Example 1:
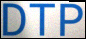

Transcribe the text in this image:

DTP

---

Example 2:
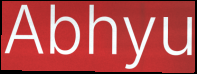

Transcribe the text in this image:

Abhyu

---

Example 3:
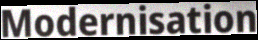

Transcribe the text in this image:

Modernisation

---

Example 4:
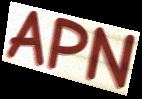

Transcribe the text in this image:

APN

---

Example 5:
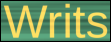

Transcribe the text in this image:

Writs